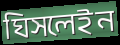
ঘিসলেইন